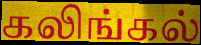
கலிங்கல்